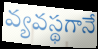
వ్యవస్థగానే